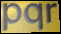
pqr